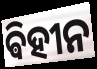
ଵିହୀନ